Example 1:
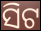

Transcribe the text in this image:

ସିଟ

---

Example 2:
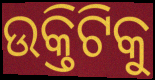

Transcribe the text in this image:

ଉକ୍ତିଟିକୁ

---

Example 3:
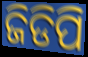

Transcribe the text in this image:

ଜିଡିପି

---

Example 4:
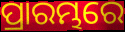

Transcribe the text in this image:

ପ୍ରାରମ୍ଭରେ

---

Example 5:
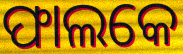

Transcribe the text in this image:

ଫାଲକେ